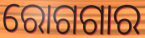
ରୋଗଗାର